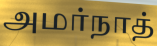
அமர்நாத்